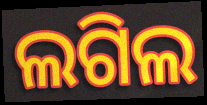
ଲଗିଲ